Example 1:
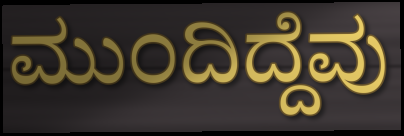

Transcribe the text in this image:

ಮುಂದಿದ್ದೆವು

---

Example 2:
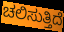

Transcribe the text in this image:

ಚಲಿಸುತ್ತಿದೆ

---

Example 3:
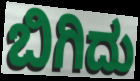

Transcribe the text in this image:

ಬಿಗಿದು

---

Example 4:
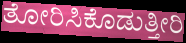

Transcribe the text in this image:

ತೋರಿಸಿಕೊಡುತ್ತೀರಿ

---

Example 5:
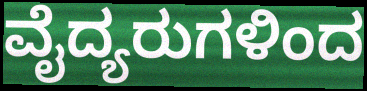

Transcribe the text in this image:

ವೈದ್ಯರುಗಳಿಂದ